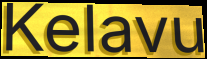
Kelavu